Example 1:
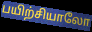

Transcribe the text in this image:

பயிற்சியாலோ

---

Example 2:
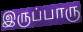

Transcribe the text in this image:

இருப்பாரு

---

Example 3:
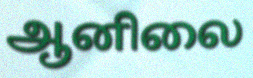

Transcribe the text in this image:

ஆனிலை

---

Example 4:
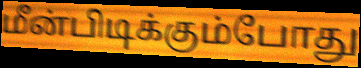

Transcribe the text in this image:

மீன்பிடிக்கும்போது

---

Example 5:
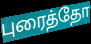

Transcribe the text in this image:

புரைத்தோ